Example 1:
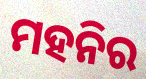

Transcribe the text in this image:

ମହନିର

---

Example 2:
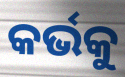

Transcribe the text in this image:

କର୍ଭକୁ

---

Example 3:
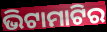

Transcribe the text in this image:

ଭିଟାମାଟିର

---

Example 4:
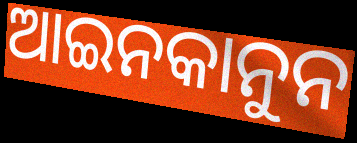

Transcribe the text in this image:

ଆଇନକାନୁନ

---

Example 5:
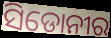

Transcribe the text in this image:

ସିଡୋନୀର